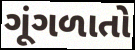
ગૂંગળાતો